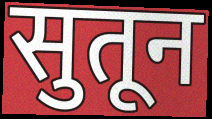
सुतून